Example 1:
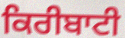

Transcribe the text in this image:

ਕਿਰੀਬਾਟੀ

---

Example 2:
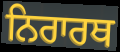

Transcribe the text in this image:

ਨਿਰਾਰਥ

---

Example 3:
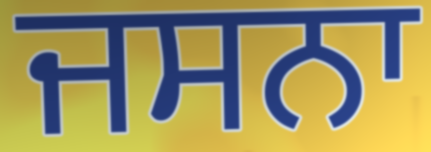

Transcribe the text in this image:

ਜਸਨਾ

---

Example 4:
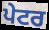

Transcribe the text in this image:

ਪੇਟਰ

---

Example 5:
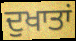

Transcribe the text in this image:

ਦੁਖਾਤਾਂ